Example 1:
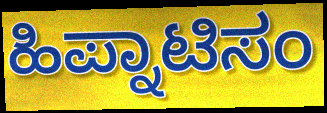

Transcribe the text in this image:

ಹಿಪ್ನಾಟಿಸಂ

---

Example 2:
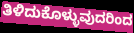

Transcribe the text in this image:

ತಿಳಿದುಕೊಳ್ಳುವುದರಿಂದ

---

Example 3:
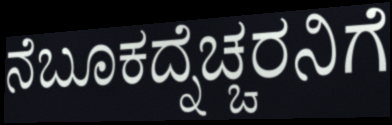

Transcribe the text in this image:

ನೆಬೂಕದ್ನೆಚ್ಚರನಿಗೆ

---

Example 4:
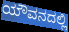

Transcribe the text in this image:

ಯೌವನದಲ್ಲಿ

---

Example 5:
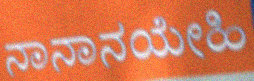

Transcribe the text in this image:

ನಾನಾನಯೇಹಿ